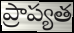
ప్రాప్యత